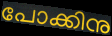
പോക്കിനു